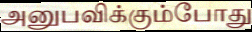
அனுபவிக்கும்போது